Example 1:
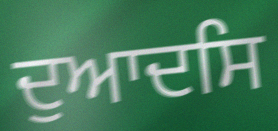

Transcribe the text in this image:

ਦੁਆਦਸਿ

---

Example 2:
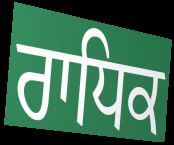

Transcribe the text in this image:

ਰਾਧਿਕ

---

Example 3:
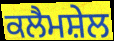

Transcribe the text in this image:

ਕਲੈਮਸ਼ੇਲ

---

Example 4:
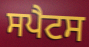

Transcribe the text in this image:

ਸਪੈਟਸ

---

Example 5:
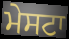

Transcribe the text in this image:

ਮੇਸਟਾ